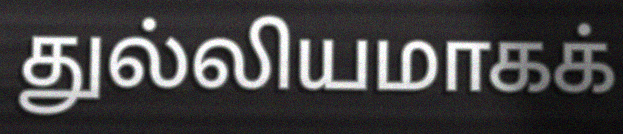
துல்லியமாகக்